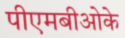
पीएमबीओके